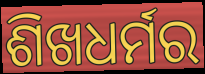
ଶିଖଧର୍ମର